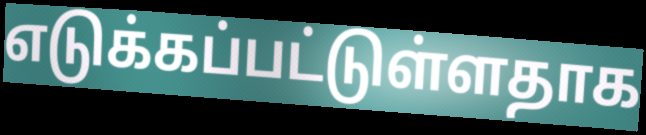
எடுக்கப்பட்டுள்ளதாக